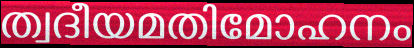
ത്വദീയമതിമോഹനം